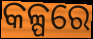
କଳ୍ପରେ